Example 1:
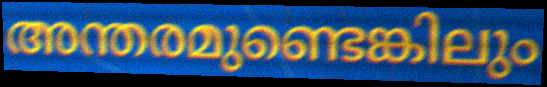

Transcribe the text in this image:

അന്തരമുണ്ടെങ്കിലും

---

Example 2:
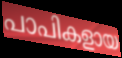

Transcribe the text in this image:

പാപികളായ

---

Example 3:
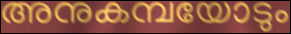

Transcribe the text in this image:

അനുകമ്പയോടും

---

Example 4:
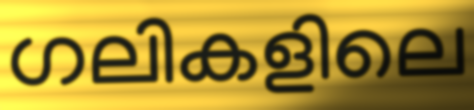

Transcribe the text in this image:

ഗലികളിലെ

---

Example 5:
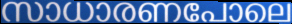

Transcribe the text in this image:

സാധാരണപോലെ